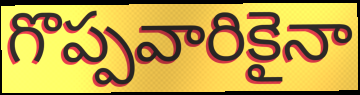
గొప్పవారికైనా